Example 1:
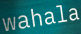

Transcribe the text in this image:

wahala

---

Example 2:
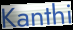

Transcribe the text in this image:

Kanthi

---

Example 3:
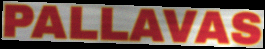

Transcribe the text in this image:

PALLAVAS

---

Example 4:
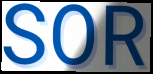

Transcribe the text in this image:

SOR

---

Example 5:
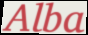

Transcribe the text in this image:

Alba